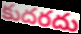
కుదరదు